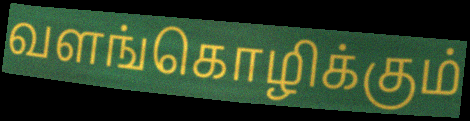
வளங்கொழிக்கும்